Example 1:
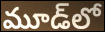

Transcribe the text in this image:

మూడ్‌లో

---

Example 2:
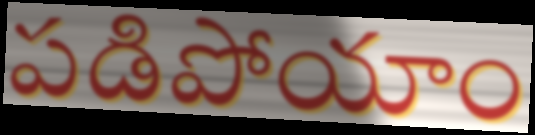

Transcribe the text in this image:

పడిపోయాం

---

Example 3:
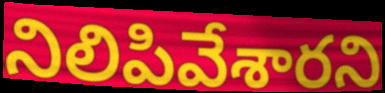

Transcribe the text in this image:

నిలిపివేశారని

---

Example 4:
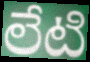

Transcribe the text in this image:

లేటి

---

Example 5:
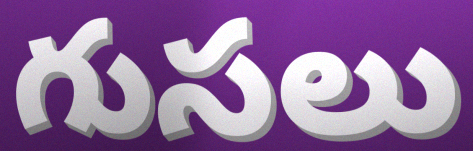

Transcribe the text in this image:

గుసలు